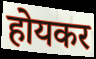
होयकर